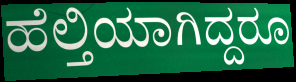
ಹೆಲ್ತಿಯಾಗಿದ್ದರೂ